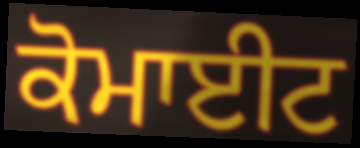
ਕੋਮਾਈਟ